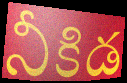
నీకిడ